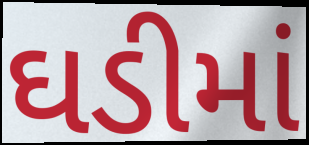
ઘડીમાં